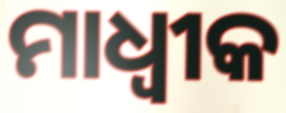
ମାଧ୍ୱୀକ